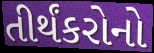
તીર્થંકરોનો